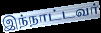
இந்நாட்டவர்